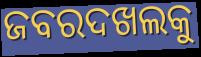
ଜବରଦଖଲକୁ